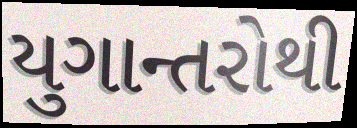
યુગાન્તરોથી